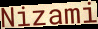
Nizami